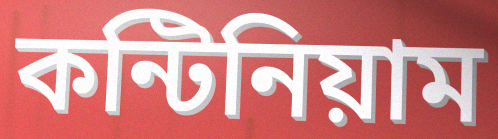
কন্টিনিয়াম